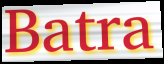
Batra